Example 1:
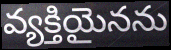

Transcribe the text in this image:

వ్యక్తియైనను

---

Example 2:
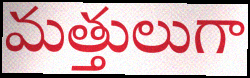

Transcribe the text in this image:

మత్తులుగా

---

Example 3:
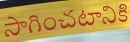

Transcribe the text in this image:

సాగించటానికి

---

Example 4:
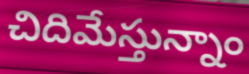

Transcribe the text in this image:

చిదిమేస్తున్నాం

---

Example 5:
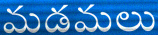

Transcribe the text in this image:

మడమలు